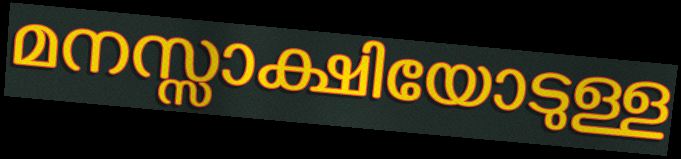
മനസ്സാക്ഷിയോടുള്ള